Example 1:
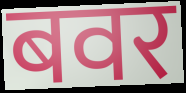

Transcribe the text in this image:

बवर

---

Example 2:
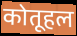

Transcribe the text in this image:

कोतूहल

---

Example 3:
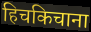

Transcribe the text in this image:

हिचकिचाना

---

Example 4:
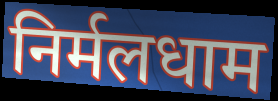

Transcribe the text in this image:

निर्मलधाम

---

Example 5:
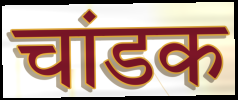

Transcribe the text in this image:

चांडक